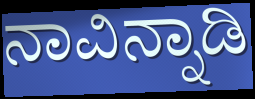
ನಾವಿನ್ನಾಡಿ